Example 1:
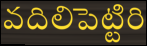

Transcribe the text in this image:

వదిలిపెట్టిరి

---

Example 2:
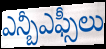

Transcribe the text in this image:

ఎన్బీఎఫ్సీలు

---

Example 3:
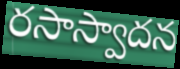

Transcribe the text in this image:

రసాస్వాదన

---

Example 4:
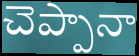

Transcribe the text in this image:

చెప్పానా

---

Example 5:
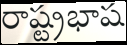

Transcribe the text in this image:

రాష్ట్రభాష